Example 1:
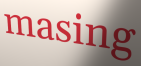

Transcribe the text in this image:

masing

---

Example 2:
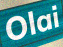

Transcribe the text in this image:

Olai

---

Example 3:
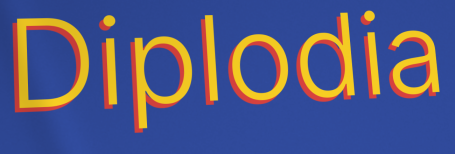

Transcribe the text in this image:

Diplodia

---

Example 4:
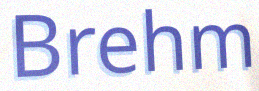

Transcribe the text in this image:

Brehm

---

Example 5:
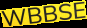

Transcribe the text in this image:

WBBSE